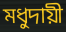
মধুদায়ী